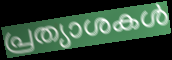
പ്രത്യാശകൾ